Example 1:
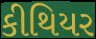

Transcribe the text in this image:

કીથિયર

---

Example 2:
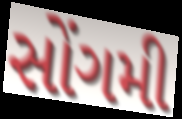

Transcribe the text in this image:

સોંગમી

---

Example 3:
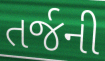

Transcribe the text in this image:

તર્જની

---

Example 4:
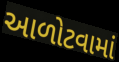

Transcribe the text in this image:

આળોટવામાં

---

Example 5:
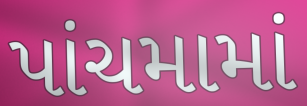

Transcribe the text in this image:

પાંચમામાં